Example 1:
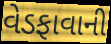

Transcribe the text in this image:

વેડફાવાની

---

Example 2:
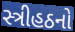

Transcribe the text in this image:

સ્ત્રીહઠનો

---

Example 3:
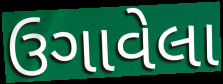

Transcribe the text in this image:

ઉગાવેલા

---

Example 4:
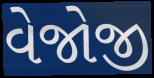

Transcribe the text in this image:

વેજોજી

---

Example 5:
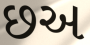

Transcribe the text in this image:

છઅ